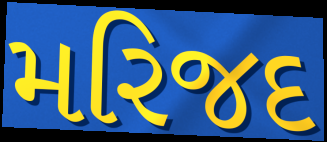
મરિજદ